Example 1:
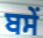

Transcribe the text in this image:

ਬਸੇਂ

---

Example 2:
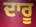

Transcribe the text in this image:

ਦਾਰੂ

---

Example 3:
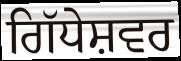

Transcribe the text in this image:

ਗਿੱਧੇਸ਼ਵਰ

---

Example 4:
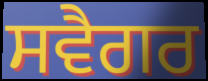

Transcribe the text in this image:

ਸਵੈਗਰ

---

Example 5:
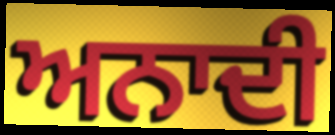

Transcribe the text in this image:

ਅਨਾਦੀ